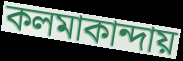
কলমাকান্দায়